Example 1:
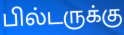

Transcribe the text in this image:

பில்டருக்கு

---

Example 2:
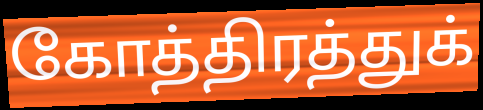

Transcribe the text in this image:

கோத்திரத்துக்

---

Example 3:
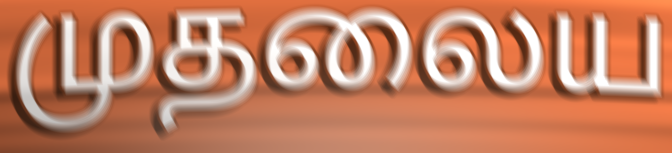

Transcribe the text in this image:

முதலைய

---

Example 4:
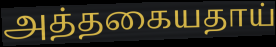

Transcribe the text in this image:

அத்தகையதாய்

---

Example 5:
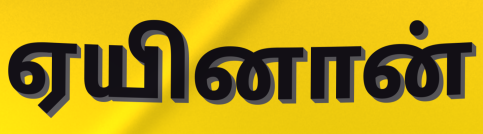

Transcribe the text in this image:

ஏயினான்